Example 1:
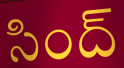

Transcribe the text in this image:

సింద్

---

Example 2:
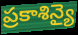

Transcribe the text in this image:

ప్రకాశిన్యై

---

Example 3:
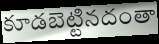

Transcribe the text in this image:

కూడబెట్టినదంతా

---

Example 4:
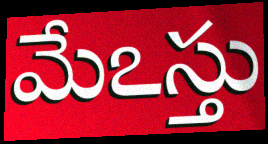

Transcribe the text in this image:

మేఽస్తు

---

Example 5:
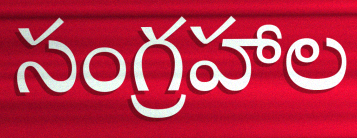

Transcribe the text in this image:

సంగ్రహాల